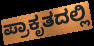
ಪ್ರಾಕೃತದಲ್ಲಿ